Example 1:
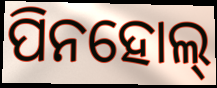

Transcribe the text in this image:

ପିନହୋଲ୍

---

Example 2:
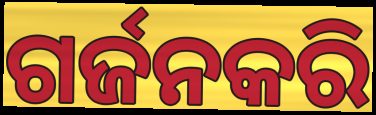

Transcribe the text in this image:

ଗର୍ଜନକରି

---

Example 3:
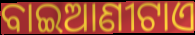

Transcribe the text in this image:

ବାଇଆଣୀଟାଏ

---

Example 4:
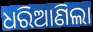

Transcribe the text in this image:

ଧରିଆଣିଲା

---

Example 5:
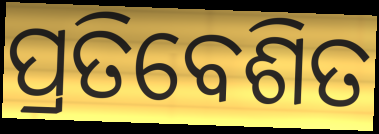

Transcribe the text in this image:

ପ୍ରତିବେଶିତ